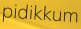
pidikkum